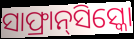
ସାଫ୍ରାନ୍‌ସିସ୍କୋ